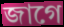
জাগে